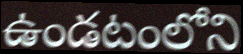
ఉండటంలోని